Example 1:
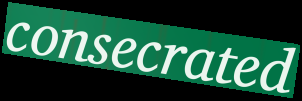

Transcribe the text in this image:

consecrated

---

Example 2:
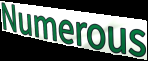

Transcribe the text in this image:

Numerous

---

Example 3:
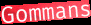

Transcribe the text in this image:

Gommans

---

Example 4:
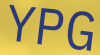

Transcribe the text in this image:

YPG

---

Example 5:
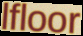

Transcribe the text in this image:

lfloor